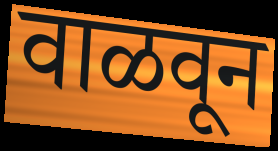
वाळवून